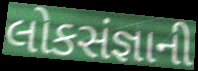
લોકસંજ્ઞાની